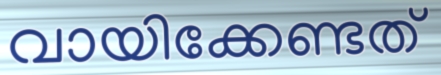
വായിക്കേണ്ടത്